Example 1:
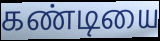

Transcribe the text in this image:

கண்டியை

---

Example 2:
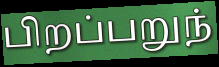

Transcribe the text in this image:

பிறப்பறுந்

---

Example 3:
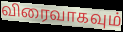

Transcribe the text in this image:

விரைவாகவும்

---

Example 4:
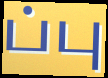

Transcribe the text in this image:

ப்பு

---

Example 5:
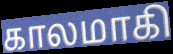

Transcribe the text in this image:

காலமாகி